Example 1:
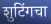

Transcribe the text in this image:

शुटिंगचा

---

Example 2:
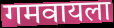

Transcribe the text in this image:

गमवायला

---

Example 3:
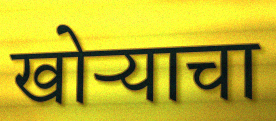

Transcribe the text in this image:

खोऱ्याचा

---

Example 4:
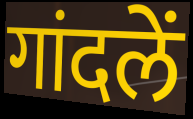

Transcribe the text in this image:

गांदलें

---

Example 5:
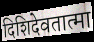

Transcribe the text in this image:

दिशिदेवतात्मा